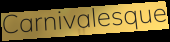
Carnivalesque